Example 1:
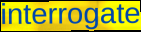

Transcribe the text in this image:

interrogate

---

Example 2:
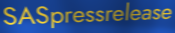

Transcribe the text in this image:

SASpressrelease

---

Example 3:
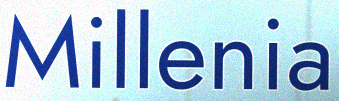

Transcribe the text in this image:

Millenia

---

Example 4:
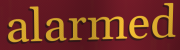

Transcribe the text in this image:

alarmed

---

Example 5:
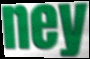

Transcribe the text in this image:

ney